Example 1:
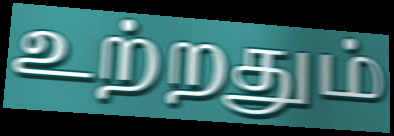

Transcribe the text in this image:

உற்றதும்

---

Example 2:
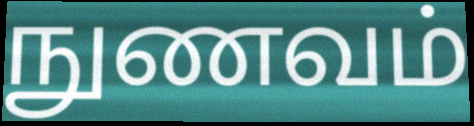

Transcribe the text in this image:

நுணவம்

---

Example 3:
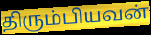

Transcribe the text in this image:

திரும்பியவன்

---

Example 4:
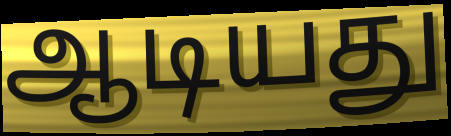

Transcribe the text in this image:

ஆடியது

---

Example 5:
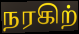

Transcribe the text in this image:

நரகிற்